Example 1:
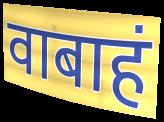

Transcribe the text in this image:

वाबाहं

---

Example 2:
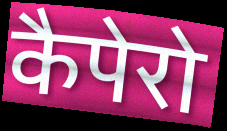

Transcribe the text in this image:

कैपेरो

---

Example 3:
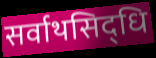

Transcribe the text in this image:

सर्वाथसिद्धि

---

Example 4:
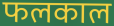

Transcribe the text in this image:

फलकाल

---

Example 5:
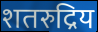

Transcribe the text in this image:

शतरुद्रिय